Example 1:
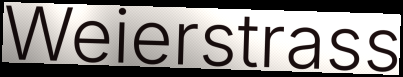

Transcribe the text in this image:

Weierstrass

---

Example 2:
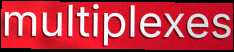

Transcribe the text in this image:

multiplexes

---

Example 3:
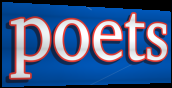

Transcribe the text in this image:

poets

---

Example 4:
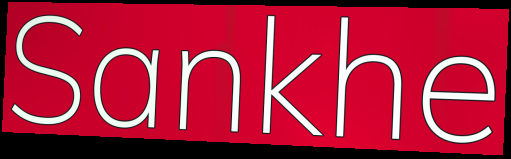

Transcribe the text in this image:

Sankhe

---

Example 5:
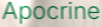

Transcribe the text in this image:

Apocrine